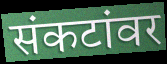
संकटांवर